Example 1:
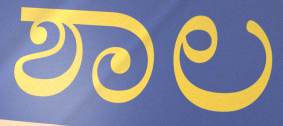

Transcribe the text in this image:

ಶಾಲ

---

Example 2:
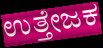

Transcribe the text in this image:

ಉತ್ತೇಜಕ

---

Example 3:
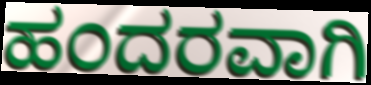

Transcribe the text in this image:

ಹಂದರವಾಗಿ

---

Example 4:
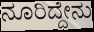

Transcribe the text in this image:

ನೂರಿದ್ದೇನು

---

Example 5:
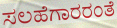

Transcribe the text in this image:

ಸಲಹೆಗಾರರಂತೆ